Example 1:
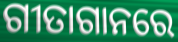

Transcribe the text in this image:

ଗୀତାଗାନରେ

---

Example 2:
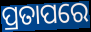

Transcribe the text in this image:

ପ୍ରତାପରେ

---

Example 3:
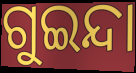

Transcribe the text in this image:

ଗୁଇନ୍ଦା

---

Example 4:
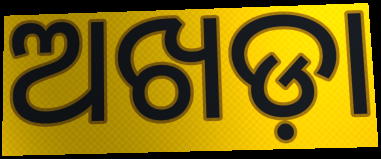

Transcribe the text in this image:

ଅଖଡ଼ା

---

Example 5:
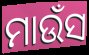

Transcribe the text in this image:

ମାଉଁସ